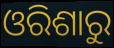
ଓରିଶାରୁ